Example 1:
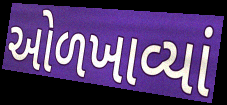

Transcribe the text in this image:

ઓળખાવ્યાં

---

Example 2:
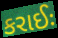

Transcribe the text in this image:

કરાઈઃ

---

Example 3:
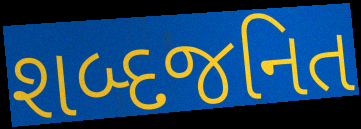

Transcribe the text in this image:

શબ્દજનિત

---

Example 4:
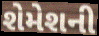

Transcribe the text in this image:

શેમેશની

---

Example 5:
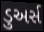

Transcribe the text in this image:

ડુઅર્સ